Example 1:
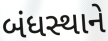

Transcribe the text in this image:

બંધસ્થાને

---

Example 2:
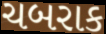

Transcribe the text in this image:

ચબરાક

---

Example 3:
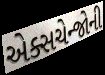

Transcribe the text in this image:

એક્સચેન્જોની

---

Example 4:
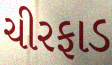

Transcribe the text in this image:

ચીરફાડ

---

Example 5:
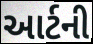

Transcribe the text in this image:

આર્ટની